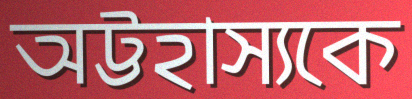
অট্টহাস্যকে